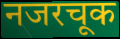
नजरचूक